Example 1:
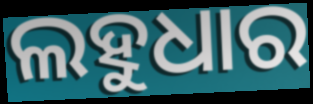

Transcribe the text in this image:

ଲହୁଧାର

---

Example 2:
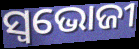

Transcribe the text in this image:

ସ୍ବଭୋଜୀ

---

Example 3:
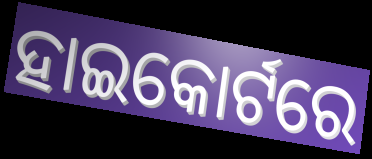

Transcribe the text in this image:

ହାଇକୋର୍ଟରେ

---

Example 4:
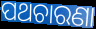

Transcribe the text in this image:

ପଥଚାରଣା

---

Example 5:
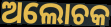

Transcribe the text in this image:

ଅଲୋଚକ